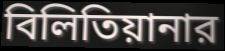
বিলিতিয়ানার